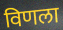
विणला